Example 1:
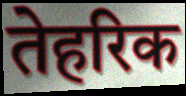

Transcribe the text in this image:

तेहरिक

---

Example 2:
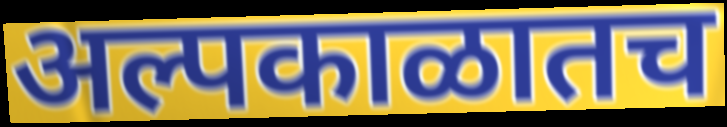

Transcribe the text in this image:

अल्पकाळातच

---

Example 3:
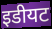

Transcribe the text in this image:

इडीयट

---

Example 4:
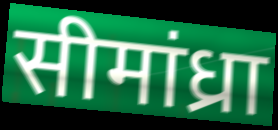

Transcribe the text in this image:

सीमांध्रा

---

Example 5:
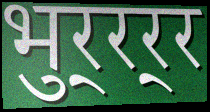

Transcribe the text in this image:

भुर्रर्र